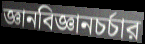
জ্ঞানবিজ্ঞানচর্চার